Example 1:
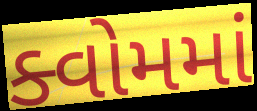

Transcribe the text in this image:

ક્વોમમાં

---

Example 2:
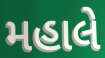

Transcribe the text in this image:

મહાલે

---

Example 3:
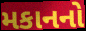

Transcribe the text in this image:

મકાનનો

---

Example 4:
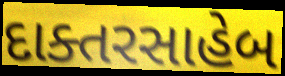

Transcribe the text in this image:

દાક્તરસાહેબ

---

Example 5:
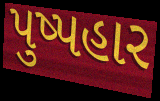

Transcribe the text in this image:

પુષ્પહાર